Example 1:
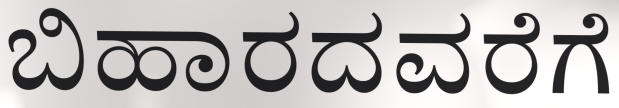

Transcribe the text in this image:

ಬಿಹಾರದವರೆಗೆ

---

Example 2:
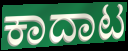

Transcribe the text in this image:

ಕಾದಾಟ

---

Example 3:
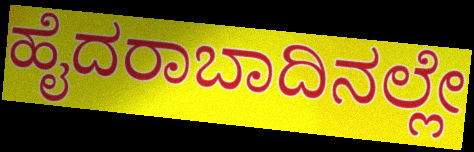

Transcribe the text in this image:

ಹೈದರಾಬಾದಿನಲ್ಲೇ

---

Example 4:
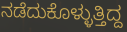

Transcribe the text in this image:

ನಡೆದುಕೊಳ್ಳುತ್ತಿದ್ದ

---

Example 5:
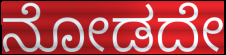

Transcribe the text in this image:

ನೋಡದೇ